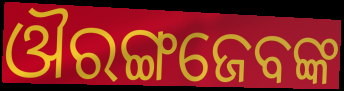
ଔରଙ୍ଗଜେବଙ୍କ